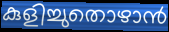
കുളിച്ചുതൊഴാൻ